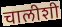
चालीशी